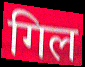
गिल